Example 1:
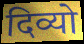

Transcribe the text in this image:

दिव्यो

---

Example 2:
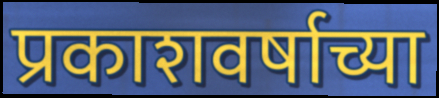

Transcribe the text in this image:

प्रकाशवर्षाच्या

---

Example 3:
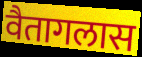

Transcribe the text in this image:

वैतागलास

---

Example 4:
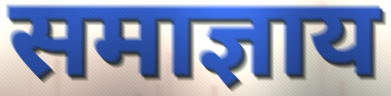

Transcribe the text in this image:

समाज्ञाय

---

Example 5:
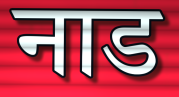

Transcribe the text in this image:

नाड